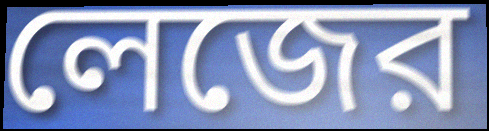
লেজের